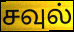
சவுல்